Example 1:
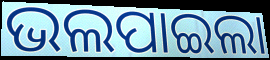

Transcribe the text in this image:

ଭଲପାଇଲା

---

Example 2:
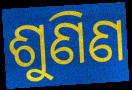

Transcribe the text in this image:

ଶୁଣିଣ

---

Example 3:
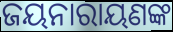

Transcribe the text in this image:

ଜୟନାରାୟଣଙ୍କ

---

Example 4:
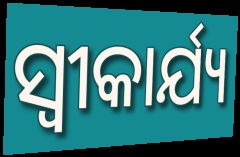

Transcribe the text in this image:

ସ୍ଵୀକାର୍ଯ୍ୟ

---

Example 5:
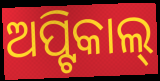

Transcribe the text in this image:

ଅପ୍ଟିକାଲ୍